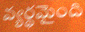
వ్యర్థమైంది